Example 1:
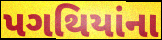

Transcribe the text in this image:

પગથિયાંના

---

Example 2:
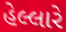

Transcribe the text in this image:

હેલ્લારે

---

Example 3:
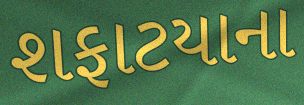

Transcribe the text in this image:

શફાટયાના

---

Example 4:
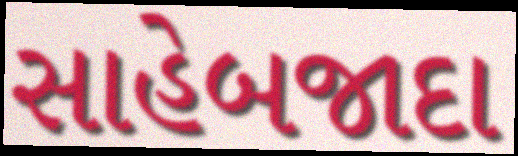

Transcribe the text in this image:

સાહેબજાદા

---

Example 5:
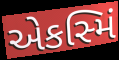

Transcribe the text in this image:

એકસ્મિં